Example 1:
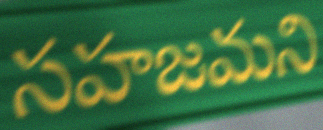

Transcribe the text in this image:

సహజమని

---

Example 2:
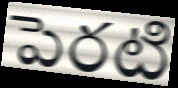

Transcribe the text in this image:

పెరటి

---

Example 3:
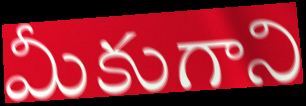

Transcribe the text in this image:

మీకుగాని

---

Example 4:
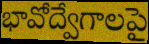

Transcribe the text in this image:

భావోద్వేగాలపై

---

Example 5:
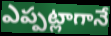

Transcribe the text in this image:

ఎప్పట్లాగానే